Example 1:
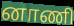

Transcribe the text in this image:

னாணி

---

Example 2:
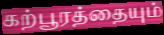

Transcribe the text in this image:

கற்பூரத்தையும்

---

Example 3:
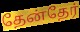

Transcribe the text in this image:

தேன்தேர்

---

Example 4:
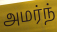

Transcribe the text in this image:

அமர்ந்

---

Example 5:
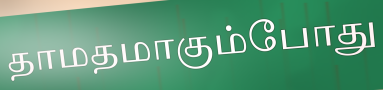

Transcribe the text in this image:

தாமதமாகும்போது